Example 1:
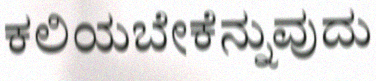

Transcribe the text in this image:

ಕಲಿಯಬೇಕೆನ್ನುವುದು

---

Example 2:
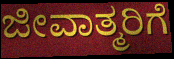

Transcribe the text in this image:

ಜೀವಾತ್ಮರಿಗೆ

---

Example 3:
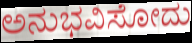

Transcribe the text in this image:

ಅನುಭವಿಸೋದು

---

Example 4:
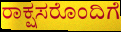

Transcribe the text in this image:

ರಾಕ್ಷಸರೊಂದಿಗೆ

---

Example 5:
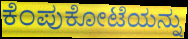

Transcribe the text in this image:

ಕೆಂಪುಕೋಟೆಯನ್ನು